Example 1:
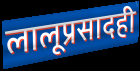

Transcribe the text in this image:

लालूप्रसादही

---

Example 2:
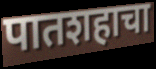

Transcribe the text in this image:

पातशहाचा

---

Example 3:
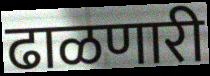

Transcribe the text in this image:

ढाळणारी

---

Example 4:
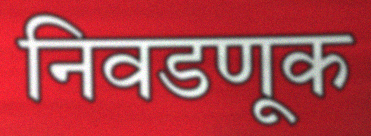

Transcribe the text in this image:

निवडणूक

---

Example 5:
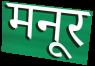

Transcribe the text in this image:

मनूर